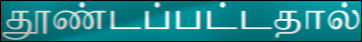
தூண்டப்பட்டதால்